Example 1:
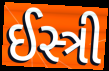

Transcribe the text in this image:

ઈસ્ત્રી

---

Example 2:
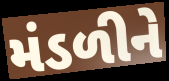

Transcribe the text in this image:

મંડળીને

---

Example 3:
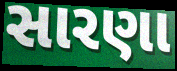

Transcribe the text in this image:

સારણા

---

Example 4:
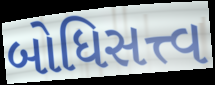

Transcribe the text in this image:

બોધિસત્ત્વ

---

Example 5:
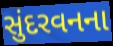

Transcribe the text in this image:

સુંદરવનના